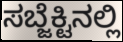
ಸಬ್ಜೆಕ್ಟಿನಲ್ಲಿ